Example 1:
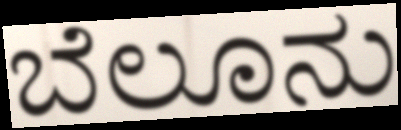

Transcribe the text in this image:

ಬೆಲೂನು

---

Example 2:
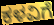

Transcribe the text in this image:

ಕಳವಿಗೆ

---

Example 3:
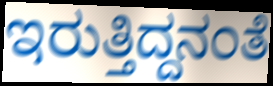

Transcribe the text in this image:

ಇರುತ್ತಿದ್ದನಂತೆ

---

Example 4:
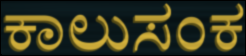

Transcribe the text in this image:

ಕಾಲುಸಂಕ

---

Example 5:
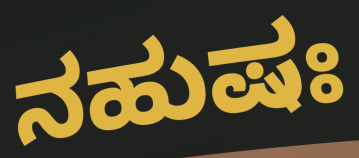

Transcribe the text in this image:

ನಹುಷಃ